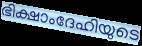
ഭിക്ഷാംദേഹിയുടെ